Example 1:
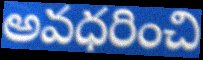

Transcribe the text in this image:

అవధరించి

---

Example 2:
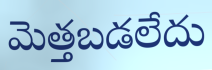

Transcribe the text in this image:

మెత్తబడలేదు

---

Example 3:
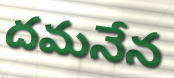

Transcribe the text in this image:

దమనేన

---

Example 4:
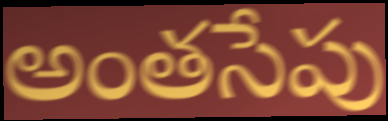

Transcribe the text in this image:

అంతసేపు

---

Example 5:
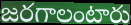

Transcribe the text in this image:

జరగాలంటారు